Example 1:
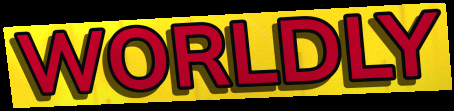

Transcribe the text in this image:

WORLDLY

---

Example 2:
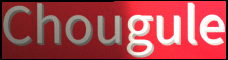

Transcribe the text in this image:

Chougule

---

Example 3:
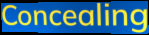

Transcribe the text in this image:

Concealing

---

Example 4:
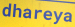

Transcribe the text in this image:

dhareya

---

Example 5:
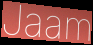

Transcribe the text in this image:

Jaam